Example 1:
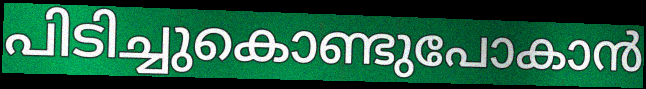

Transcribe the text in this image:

പിടിച്ചുകൊണ്ടുപോകാൻ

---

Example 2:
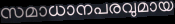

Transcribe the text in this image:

സമാധാനപരവുമായ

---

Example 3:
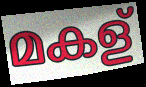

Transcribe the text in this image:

മകള്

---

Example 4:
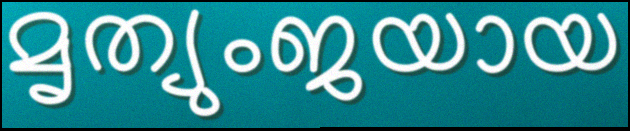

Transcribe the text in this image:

മൃത്യുംജയായ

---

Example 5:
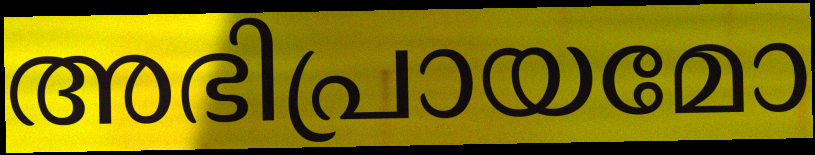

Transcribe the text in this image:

അഭിപ്രായമോ